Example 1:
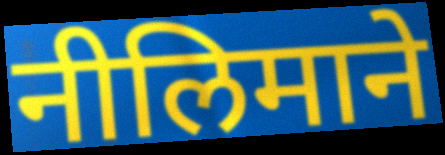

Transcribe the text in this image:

नीलिमाने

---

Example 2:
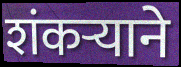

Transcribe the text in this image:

शंकर्‍याने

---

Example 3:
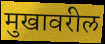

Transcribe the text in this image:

मुखावरील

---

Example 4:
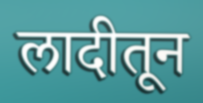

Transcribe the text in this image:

लादीतून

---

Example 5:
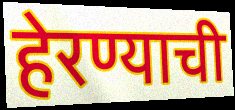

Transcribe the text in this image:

हेरण्याची